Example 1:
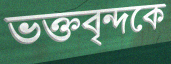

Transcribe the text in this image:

ভক্তবৃন্দকে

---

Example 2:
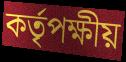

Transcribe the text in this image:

কর্তৃপক্ষীয়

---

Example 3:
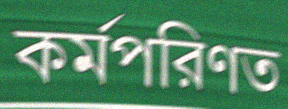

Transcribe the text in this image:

কর্মপরিণত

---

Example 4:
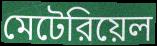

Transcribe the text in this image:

মেটেরিয়েল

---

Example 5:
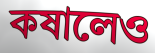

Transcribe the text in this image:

কষালেও